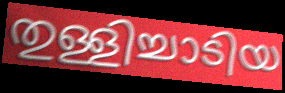
തുള്ളിച്ചാടിയ